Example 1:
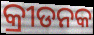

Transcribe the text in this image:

କ୍ରୀଡନକ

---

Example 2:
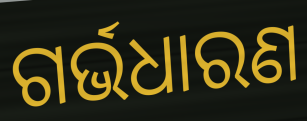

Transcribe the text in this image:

ଗର୍ଭଧାରଣ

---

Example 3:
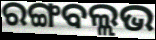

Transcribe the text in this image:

ରଙ୍ଗବଲ୍ଲଭ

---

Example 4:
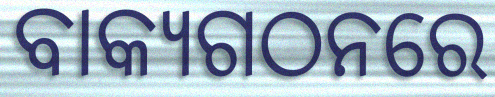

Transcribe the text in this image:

ବାକ୍ୟଗଠନରେ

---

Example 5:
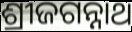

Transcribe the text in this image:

ଶ୍ରୀଜଗନ୍ନାଥ